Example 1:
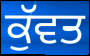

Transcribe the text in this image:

ਕੁੱਵਤ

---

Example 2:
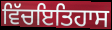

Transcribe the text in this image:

ਵਿੱਚਇਤਿਹਾਸ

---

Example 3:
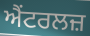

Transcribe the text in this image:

ਐਂਟਰਲਜ਼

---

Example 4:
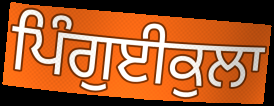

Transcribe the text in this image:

ਪਿੰਗੁਈਕੁਲਾ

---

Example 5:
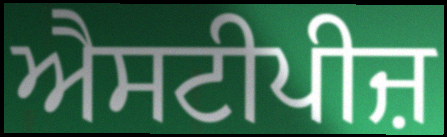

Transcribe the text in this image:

ਐਸਟੀਪੀਜ਼